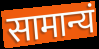
सामान्यं